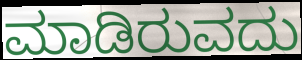
ಮಾಡಿರುವದು